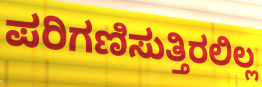
ಪರಿಗಣಿಸುತ್ತಿರಲಿಲ್ಲ